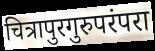
चित्रापुरगुरुपरंपरा